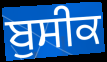
ਬੁਸੀਕ